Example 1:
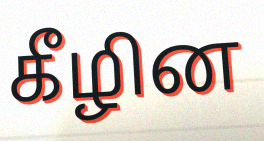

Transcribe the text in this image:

கீழின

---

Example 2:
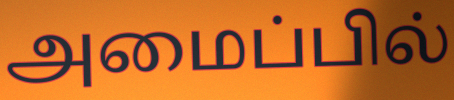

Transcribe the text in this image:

அமைப்பில்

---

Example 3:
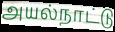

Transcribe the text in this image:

அயல்நாட்டு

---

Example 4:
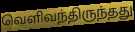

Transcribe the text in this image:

வெளிவந்திருந்தது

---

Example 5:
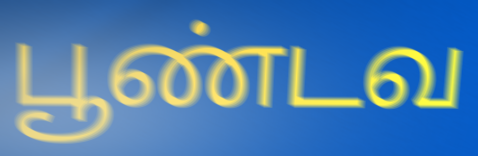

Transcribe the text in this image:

பூண்டவ